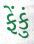
ફેંકું